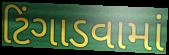
ટિંગાડવામાં